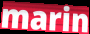
marin